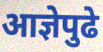
आज्ञेपुढे